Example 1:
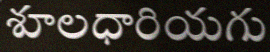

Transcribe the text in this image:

శూలధారియగు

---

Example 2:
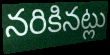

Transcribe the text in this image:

నరికినట్లు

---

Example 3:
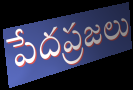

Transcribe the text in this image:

పేదప్రజలు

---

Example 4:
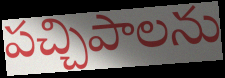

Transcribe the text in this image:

పచ్చిపాలను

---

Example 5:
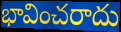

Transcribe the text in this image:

భావించరాదు